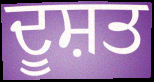
ਦੂਸ਼ਤ